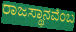
ರಾಜಸ್ಥಾನವೆಂಬ